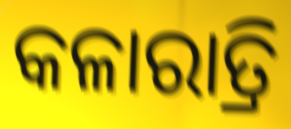
କଳାରାତ୍ରି